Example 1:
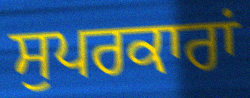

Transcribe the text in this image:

ਸੁਪਰਕਾਰਾਂ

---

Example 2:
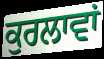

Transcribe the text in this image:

ਕੁਰਲਾਵਾਂ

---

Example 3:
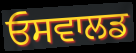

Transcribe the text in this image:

ਓਸਵਾਲਡ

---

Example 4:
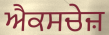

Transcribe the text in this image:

ਐਕਸਚੇਜ਼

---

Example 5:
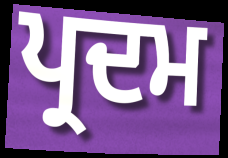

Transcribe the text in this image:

ਪ੍ਰਦਮ